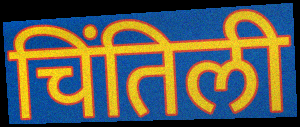
चिंतिली